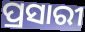
ପ୍ରସାରୀ